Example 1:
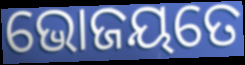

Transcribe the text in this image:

ଭୋଜୟତେ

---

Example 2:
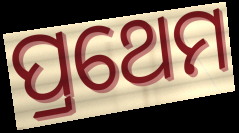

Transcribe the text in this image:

ପ୍ରଥେମ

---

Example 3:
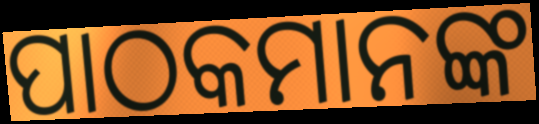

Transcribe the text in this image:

ପାଠକମାନଙ୍କ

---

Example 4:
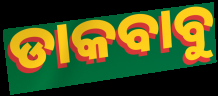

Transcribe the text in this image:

ଡାକବାବୁ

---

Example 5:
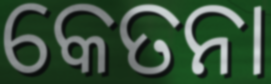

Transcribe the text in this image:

କେତନା